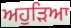
ਅਹੁੜਿਆ